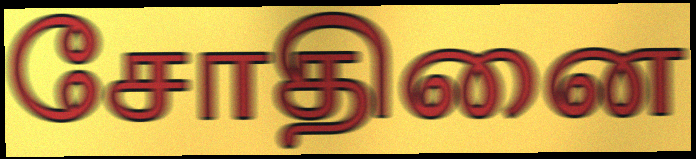
சோதினை